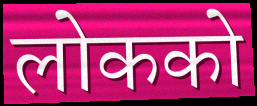
लोकको